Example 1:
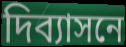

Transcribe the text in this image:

দিব্যাসনে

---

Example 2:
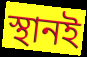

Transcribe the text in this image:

স্থানই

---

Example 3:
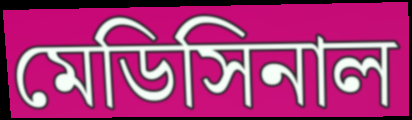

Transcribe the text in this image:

মেডিসিনাল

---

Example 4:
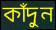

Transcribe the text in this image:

কাঁদুন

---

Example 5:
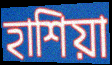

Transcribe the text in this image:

হাশিয়া